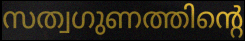
സത്വഗുണത്തിന്റെ